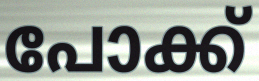
പോക്ക്